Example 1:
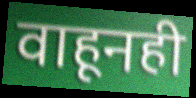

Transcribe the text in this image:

वाहूनही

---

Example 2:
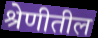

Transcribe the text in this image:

श्रेणीतील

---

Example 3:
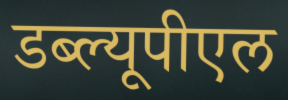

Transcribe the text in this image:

डब्ल्यूपीएल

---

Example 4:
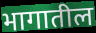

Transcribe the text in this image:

भागातील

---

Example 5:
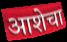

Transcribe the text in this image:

आशेचा